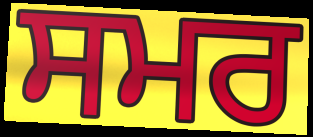
ਸਮਰ